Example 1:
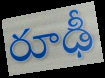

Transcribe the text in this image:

రూఢీ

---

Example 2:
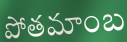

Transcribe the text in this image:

పోతమాంబ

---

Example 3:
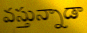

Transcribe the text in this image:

వస్తున్నాడా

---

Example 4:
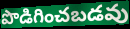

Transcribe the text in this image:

పొడిగించబడవు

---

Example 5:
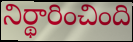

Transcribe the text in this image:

నిర్థారించింది